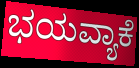
ಭಯವ್ಯಾಕೆ